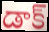
డాక్